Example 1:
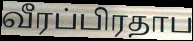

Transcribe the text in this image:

வீரப்பிரதாப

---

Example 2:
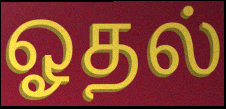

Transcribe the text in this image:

ஓதல்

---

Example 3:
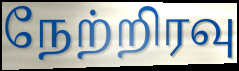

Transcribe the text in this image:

நேற்றிரவு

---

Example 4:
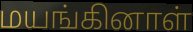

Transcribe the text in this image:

மயங்கினாள்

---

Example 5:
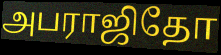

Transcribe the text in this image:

அபராஜிதோ